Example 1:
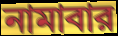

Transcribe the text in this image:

নামাবার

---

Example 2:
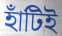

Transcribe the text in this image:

হাঁটিই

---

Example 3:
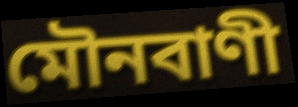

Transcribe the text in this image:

মৌনবাণী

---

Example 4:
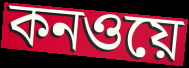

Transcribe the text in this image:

কনওয়ে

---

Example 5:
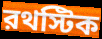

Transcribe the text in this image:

রথস্টিক